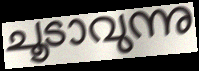
ചൂടാവുന്നു